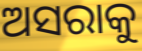
ଅସରାକୁ